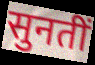
सुनतीं